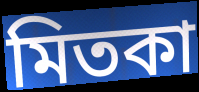
মিতকা